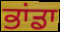
ਭਾਂਡਾ